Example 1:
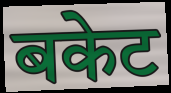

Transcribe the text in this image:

बकेट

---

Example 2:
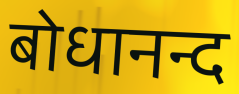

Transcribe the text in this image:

बोधानन्द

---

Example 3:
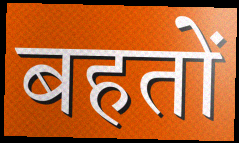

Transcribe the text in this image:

बहतों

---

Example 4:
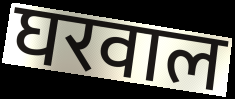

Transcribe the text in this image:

घरवाल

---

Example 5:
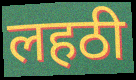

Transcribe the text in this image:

लहठी